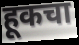
हूकचा